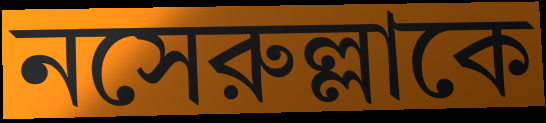
নসেরুল্লাকে